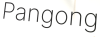
Pangong